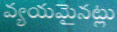
వ్యయమైనట్లు